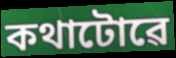
কথাটোৱে